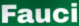
Fauci